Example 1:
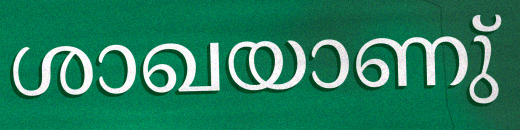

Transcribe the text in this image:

ശാഖയാണു്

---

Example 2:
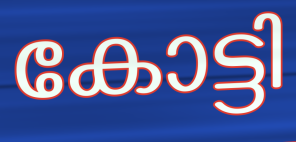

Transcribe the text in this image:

കോട്ടി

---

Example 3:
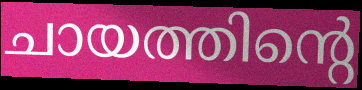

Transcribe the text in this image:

ചായത്തിന്റെ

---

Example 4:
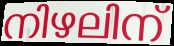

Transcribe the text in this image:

നിഴലിന്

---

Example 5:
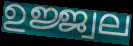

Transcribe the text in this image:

ഉജ്ജ്വല